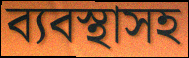
ব্যবস্থাসহ